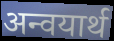
अन्वयार्थ